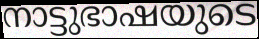
നാട്ടുഭാഷയുടെ